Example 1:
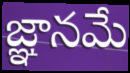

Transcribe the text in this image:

జ్ఞానమే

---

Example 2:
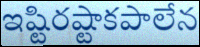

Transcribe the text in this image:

ఇష్టిరష్టాకపాలేన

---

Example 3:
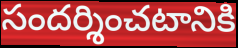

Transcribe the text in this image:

సందర్శించటానికి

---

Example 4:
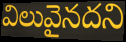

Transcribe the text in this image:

విలువైనదని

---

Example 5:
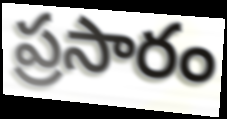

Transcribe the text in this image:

ప్రసారం